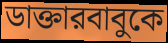
ডাক্তারবাবুকে